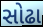
સોઢા